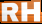
RH